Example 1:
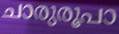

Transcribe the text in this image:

ചാരുരൂപാ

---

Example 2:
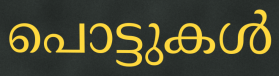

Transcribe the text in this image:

പൊട്ടുകൾ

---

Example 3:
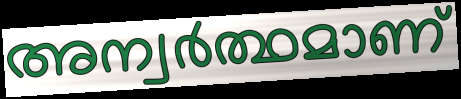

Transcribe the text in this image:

അന്വർത്ഥമാണ്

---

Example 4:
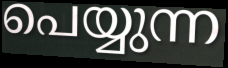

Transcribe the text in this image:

പെയ്യുന്ന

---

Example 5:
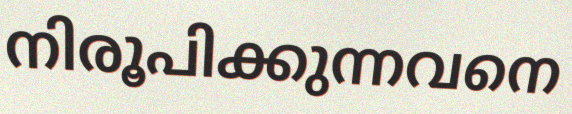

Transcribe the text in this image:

നിരൂപിക്കുന്നവനെ